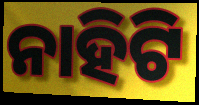
ନାହିଟି